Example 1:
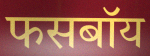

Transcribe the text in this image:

फसबॉय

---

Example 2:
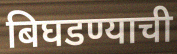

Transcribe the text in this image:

बिघडण्याची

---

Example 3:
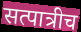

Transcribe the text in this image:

सत्पात्रीच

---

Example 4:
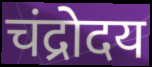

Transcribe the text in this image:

चंद्रोदय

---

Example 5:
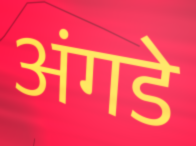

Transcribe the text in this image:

अंगडे